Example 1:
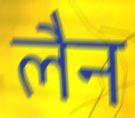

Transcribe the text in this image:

लैन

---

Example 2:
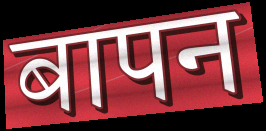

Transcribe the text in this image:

बापन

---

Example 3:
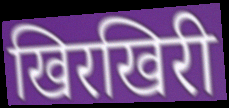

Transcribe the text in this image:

खिरखिरी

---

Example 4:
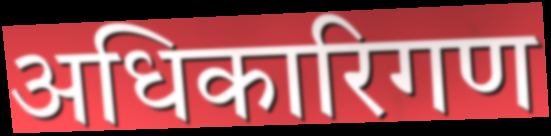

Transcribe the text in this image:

अधिकारिगण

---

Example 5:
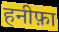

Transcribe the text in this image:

हनीफ़ा